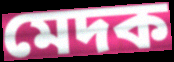
মেদক